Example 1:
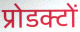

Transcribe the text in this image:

प्रोडक्टों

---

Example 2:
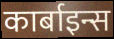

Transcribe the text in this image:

कार्बाइन्स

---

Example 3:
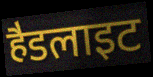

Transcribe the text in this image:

हैडलाइट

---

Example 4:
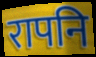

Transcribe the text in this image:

रापनि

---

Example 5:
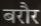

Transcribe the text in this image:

बरौर